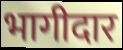
भागीदार